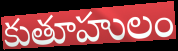
కుతూహులం